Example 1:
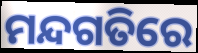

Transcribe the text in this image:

ମନ୍ଦଗତିରେ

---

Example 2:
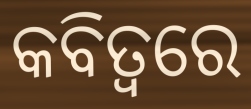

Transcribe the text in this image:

କବିତ୍ୱରେ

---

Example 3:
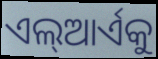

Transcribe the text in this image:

ଏଲ୍ଆର୍ଏକୁ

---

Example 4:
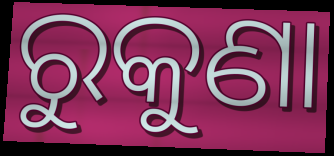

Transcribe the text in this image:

ରୁକୁଣା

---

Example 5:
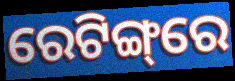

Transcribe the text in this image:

ରେଟିଙ୍ଗ୍‌ରେ